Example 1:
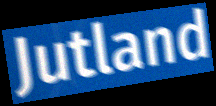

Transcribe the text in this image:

Jutland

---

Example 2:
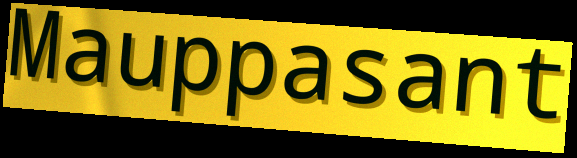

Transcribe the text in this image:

Mauppasant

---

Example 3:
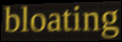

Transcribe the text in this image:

bloating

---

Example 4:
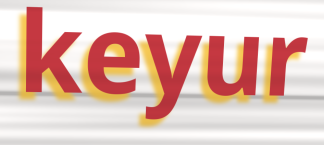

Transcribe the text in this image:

keyur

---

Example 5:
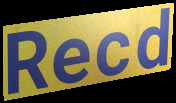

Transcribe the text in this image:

Recd